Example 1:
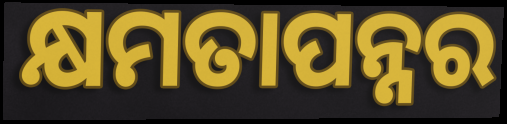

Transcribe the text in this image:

କ୍ଷମତାପନ୍ନର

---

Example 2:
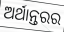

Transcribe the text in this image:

ଅର୍ଥାନ୍ତରର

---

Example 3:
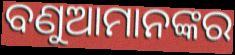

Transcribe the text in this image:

ବଣୁଆମାନଙ୍କର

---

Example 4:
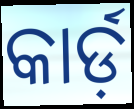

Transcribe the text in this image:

କାର୍ଡ଼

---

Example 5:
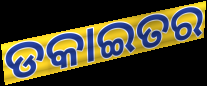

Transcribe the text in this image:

ଡକାଇତର